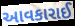
આવકારાઈ